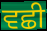
ਵਛੀ